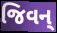
જિવન્